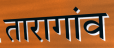
तारागांव